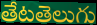
తేటతెలుగు